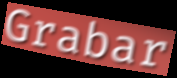
Grabar